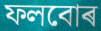
ফলবোৰ